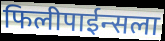
फिलीपाईन्सला